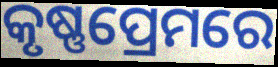
କୃଷ୍ଣପ୍ରେମରେ